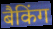
बैकिंग